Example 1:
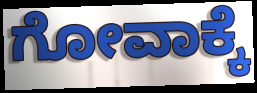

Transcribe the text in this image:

ಗೋವಾಕ್ಕೆ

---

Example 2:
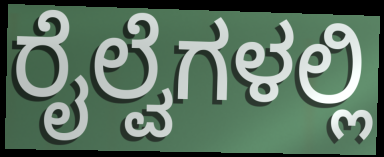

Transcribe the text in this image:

ರೈಲ್ವೆಗಳಲ್ಲಿ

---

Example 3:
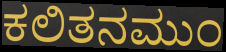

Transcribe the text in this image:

ಕಲಿತನಮುಂ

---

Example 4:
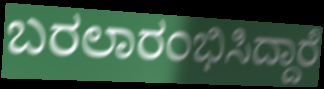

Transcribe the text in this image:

ಬರಲಾರಂಭಿಸಿದ್ದಾರೆ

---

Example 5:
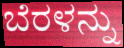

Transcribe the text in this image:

ಬೆರಳನ್ನು